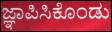
ಜ್ಞಾಪಿಸಿಕೊಂಡು